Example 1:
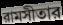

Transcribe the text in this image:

রামসীতার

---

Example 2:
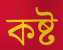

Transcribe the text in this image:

কষ্ট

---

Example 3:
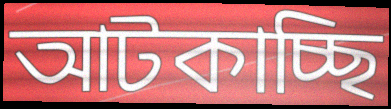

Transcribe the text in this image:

আটকাচ্ছি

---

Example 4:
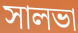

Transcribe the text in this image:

সালভা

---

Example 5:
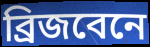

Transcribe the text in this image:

ব্রিজবেনে